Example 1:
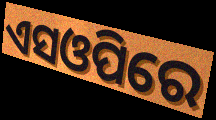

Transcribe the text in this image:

ଏସଓପିରେ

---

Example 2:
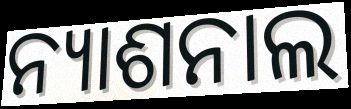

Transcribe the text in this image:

ନ୍ୟାଶନାଲ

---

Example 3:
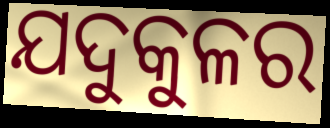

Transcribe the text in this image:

ଯଦୁକୁଳର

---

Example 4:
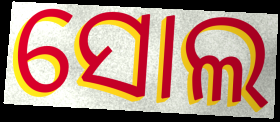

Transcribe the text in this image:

ସୋଲ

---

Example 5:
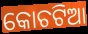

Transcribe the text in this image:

କୋଚଟିଆ